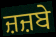
ਜ਼ਜ਼ਬੇ